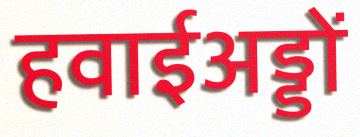
हवाईअड्डों